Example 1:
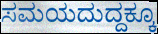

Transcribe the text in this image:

ಸಮಯದುದ್ದಕ್ಕೂ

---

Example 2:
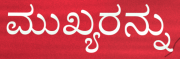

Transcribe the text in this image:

ಮುಖ್ಯರನ್ನು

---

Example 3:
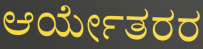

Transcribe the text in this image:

ಆರ್ಯೇತರರ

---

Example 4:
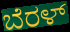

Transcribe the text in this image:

ಬೆರಳ್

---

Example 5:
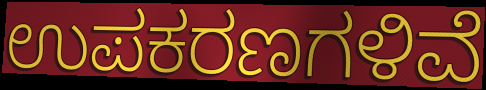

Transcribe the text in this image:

ಉಪಕರಣಗಳಿವೆ